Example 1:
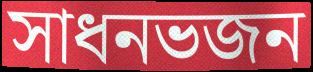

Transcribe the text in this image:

সাধনভজন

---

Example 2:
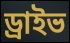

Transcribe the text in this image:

ড্রাইভ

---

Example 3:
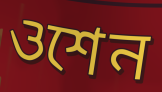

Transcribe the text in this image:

ওশেন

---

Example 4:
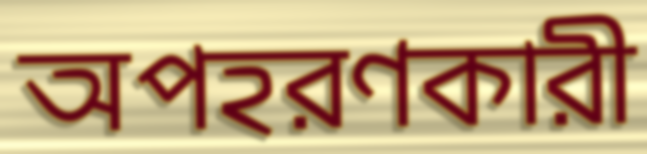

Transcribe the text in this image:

অপহরণকারী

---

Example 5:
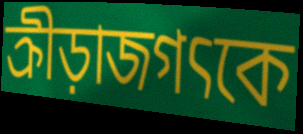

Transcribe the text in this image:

ক্রীড়াজগৎকে